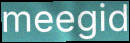
meegid